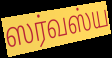
ஸர்வஸ்ய